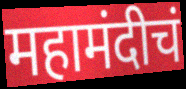
महामंदीचं